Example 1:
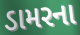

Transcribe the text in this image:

ડામરના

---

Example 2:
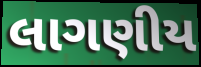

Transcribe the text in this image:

લાગણીય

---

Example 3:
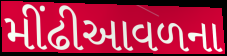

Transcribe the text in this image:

મીંઢીઆવળના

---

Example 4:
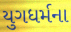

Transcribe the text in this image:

યુગધર્મના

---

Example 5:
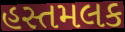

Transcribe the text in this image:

હસ્તમલક